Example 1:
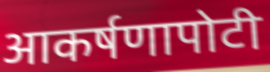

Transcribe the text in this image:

आकर्षणापोटी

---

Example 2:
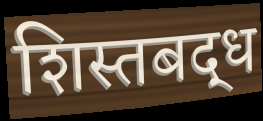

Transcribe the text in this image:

शिस्तबद्ध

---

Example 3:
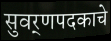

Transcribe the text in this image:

सुवर्णपदकाचे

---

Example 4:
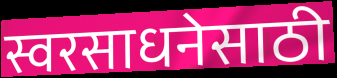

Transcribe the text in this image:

स्वरसाधनेसाठी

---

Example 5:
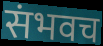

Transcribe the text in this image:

संभवच